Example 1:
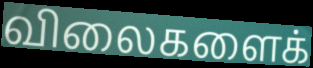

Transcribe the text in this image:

விலைகளைக்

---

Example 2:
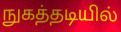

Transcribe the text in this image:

நுகத்தடியில்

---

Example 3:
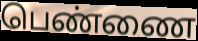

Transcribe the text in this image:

பெண்ணை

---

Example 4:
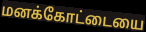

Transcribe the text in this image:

மனக்கோட்டையை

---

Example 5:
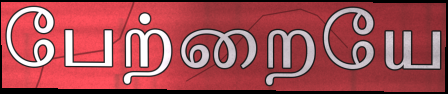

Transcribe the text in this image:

பேற்றையே